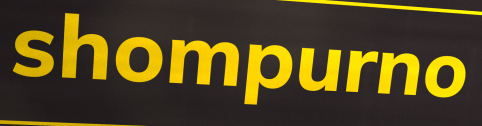
shompurno